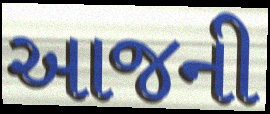
આજની